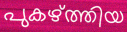
പുകഴ്ത്തിയ